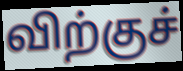
விற்குச்